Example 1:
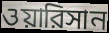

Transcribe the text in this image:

ওয়ারিসান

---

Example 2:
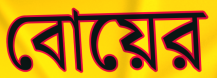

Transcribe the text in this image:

বোয়ের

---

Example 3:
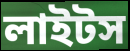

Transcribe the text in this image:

লাইটস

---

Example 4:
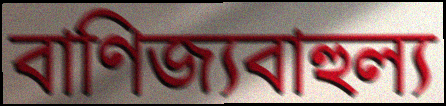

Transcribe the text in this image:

বাণিজ্যবাহুল্য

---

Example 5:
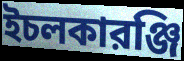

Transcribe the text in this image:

ইচলকারঞ্জি